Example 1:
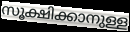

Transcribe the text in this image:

സൂക്ഷിക്കാനുള്ള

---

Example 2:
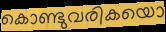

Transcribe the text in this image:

കൊണ്ടുവരികയൊ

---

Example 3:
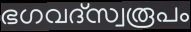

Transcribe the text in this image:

ഭഗവദ്സ്വരൂപം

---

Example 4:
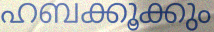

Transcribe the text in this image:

ഹബക്കൂക്കും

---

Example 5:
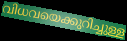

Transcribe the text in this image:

വിധവയെക്കുറിച്ചുള്ള